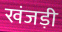
खंजड़ी